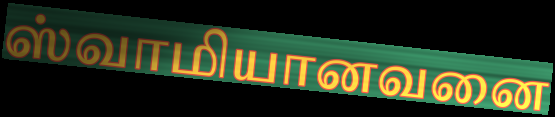
ஸ்வாமியானவனை